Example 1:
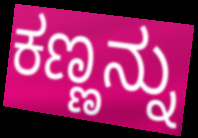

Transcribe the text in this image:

ಕಣ್ಣನ್ನು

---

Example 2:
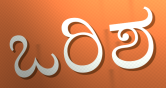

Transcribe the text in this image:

ಒರಿಶ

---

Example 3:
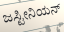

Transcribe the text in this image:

ಜಸ್ಟೀನಿಯನ್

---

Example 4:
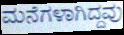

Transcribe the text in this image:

ಮನೆಗಳಾಗಿದ್ದವು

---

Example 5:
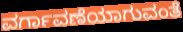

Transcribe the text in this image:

ವರ್ಗಾವಣೆಯಾಗುವಂತೆ